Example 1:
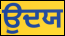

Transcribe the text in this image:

ਉਦਯ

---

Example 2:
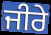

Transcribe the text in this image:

ਜੀਰੇ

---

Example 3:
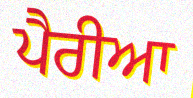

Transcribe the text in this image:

ਪੈਰੀਆ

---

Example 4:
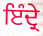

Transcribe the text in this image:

ਇੰਦ੍ਰੇ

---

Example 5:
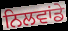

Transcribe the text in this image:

ਨਿਲਵਾਂਡੇ